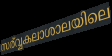
സര്വ്വകലാശാലയിലെ